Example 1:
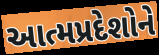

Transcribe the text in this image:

આત્મપ્રદેશોને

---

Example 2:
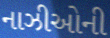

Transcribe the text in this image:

નાઝીઓની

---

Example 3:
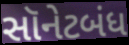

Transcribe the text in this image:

સૉનેટબંધ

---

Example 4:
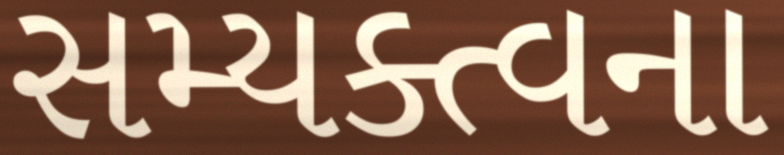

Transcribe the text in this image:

સમ્યક્ત્વના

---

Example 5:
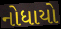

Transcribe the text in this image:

નોધાયો